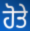
ਹੋਤੇ